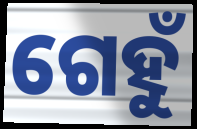
ଗେହୁଁ